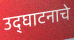
उद्‌घाटनाचे